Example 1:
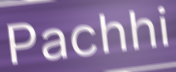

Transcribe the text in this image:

Pachhi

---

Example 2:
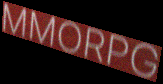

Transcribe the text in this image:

MMORPG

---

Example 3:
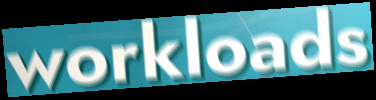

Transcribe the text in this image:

workloads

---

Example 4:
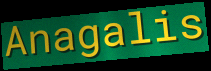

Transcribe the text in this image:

Anagalis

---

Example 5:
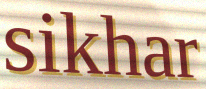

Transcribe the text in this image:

sikhar